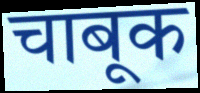
चाबूक